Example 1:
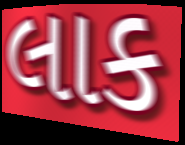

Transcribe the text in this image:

લાક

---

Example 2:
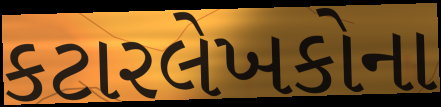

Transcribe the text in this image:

કટારલેખકોના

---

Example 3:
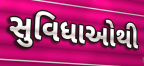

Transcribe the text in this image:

સુવિધાઓથી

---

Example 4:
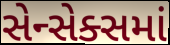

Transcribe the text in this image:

સેન્સેક્સમાં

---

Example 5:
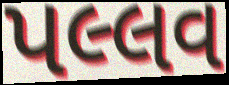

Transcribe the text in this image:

પલ્લવ